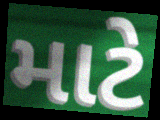
માટે